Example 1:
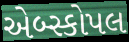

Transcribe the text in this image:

એબ્સ્કોપલ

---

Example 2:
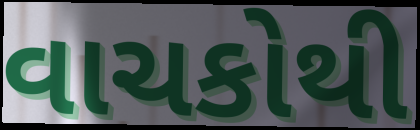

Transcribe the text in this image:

વાચકોથી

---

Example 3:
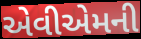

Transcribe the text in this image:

એવીએમની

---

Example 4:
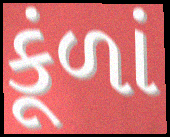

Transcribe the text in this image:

કૂંળાં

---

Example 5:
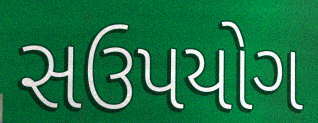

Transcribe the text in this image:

સઉપયોગ